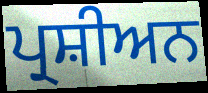
ਪ੍ਰਸ਼ੀਅਨ